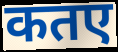
कतए